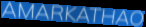
AMARKATHAO